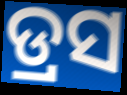
ଡ୍ରସ